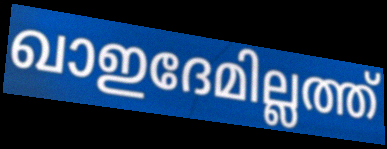
ഖാഇദേമില്ലത്ത്